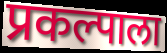
प्रकल्पाला